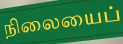
நிலையைப்